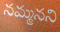
నమ్మనని